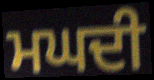
ਮਘਦੀ